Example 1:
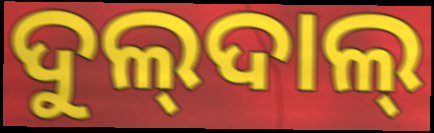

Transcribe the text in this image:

ଦୁଲ୍‍ଦାଲ୍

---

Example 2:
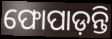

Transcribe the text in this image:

ଫୋପାଡ଼ନ୍ତି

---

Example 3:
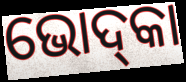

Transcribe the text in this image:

ଭୋଦ୍‌କା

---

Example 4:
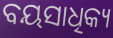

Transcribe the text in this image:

ବୟସାଧିକ୍ୟ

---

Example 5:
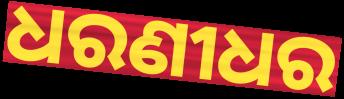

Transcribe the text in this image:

ଧରଣୀଧର